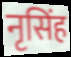
नृसिंह